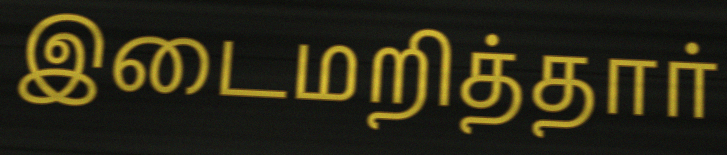
இடைமறித்தார்